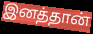
இனத்தான்